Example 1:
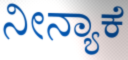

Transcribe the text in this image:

ನೀನ್ಯಾಕೆ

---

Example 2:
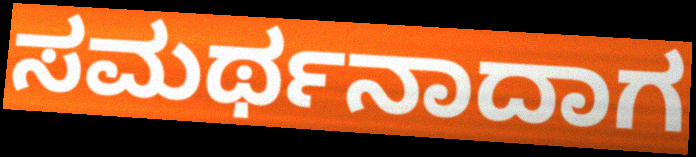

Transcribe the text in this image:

ಸಮರ್ಥನಾದಾಗ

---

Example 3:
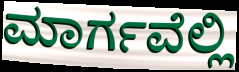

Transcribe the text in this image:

ಮಾರ್ಗವೆಲ್ಲಿ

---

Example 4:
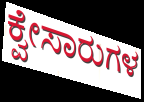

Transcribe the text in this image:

ಕ್ವೇಸಾರುಗಳ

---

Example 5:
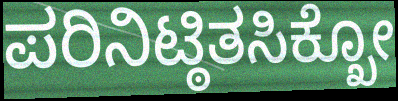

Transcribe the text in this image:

ಪರಿನಿಟ್ಠಿತಸಿಕ್ಖೋ